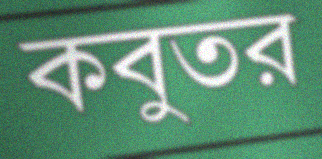
কবুতর